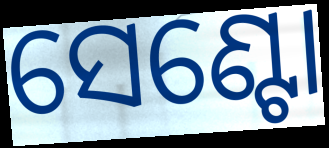
ସେଣ୍ଟୋ